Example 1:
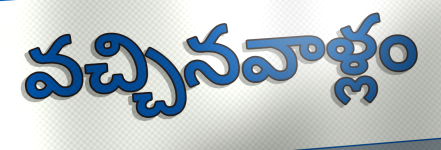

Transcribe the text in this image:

వచ్చినవాళ్లం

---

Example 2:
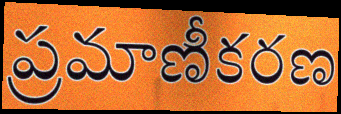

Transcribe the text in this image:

ప్రమాణీకరణ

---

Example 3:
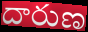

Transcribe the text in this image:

దారుణ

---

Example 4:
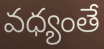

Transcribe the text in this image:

వధ్యంతే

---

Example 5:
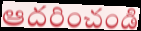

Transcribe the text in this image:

ఆదరించండి